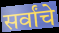
सर्वांचे